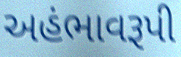
અહંભાવરૂપી